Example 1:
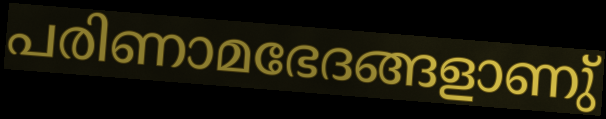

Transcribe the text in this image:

പരിണാമഭേദങ്ങളാണു്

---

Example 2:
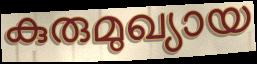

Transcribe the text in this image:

കുരുമുഖ്യായ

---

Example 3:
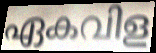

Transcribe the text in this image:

ഏകവിള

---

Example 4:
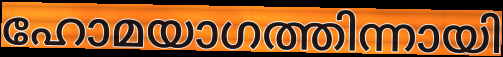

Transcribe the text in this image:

ഹോമയാഗത്തിന്നായി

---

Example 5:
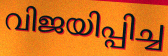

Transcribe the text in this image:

വിജയിപ്പിച്ച